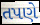
તપણે